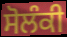
ਸੋਲੰਕੀ